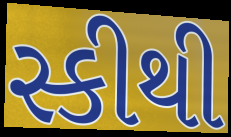
સ્કીથી